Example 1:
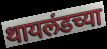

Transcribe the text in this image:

थायलंडच्या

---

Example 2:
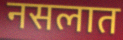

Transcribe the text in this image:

नसलात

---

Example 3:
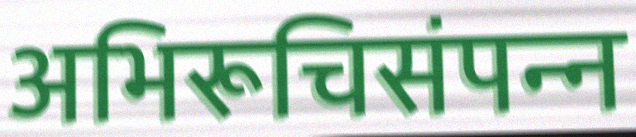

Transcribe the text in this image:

अभिरूचिसंपन्न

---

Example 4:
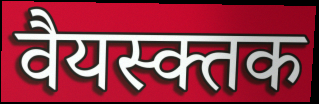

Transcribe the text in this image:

वैयस्क्तक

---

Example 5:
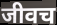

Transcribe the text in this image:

जीवच